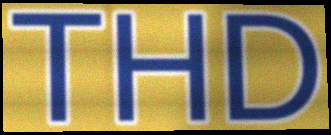
THD